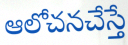
ఆలోచనచేస్తే